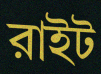
রাইট